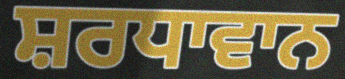
ਸ਼ਰਧਾਵਾਨ